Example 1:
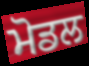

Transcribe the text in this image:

ਮੋਡਲ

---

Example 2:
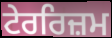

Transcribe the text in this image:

ਟੇਰਰਿਜ਼ਮ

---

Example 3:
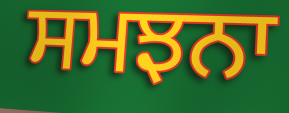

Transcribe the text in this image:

ਸਮਝਨਾ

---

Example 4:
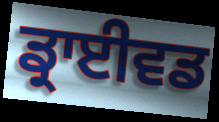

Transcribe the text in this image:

ਡ੍ਰਾਈਵਡ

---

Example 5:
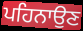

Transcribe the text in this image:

ਪਹਿਨਾਉਣ